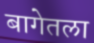
बागेतला